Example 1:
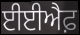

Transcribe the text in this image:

ਈਈਐਫ਼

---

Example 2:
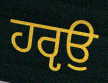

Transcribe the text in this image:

ਹਰੵਉ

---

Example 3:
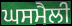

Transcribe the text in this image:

ਘਸਮੈਲੀ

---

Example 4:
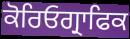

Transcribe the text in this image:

ਕੋਰਿਓਗ੍ਰਾਫਿਕ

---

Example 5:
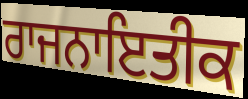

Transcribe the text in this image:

ਰਾਜਨਾਇਤੀਕ